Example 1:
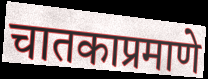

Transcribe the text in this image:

चातकाप्रमाणे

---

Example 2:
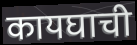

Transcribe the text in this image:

कायघाची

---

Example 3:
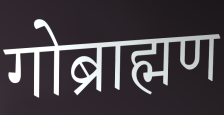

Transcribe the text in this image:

गोब्राह्मण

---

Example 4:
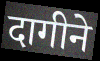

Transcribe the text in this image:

दागीने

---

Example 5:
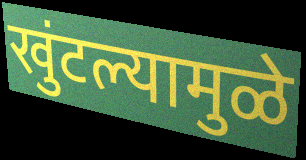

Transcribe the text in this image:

खुंटल्यामुळे